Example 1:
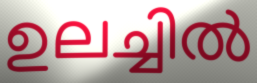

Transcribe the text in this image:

ഉലച്ചിൽ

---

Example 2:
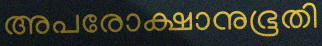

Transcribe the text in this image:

അപരോക്ഷാനുഭൂതി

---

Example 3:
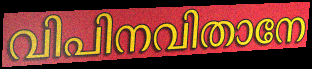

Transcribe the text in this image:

വിപിനവിതാനേ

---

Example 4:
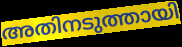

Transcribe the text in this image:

അതിനടുത്തായി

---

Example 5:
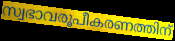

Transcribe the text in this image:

സ്വഭാവരൂപീകരണത്തിന്